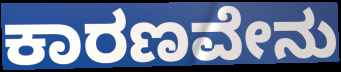
ಕಾರಣವೇನು